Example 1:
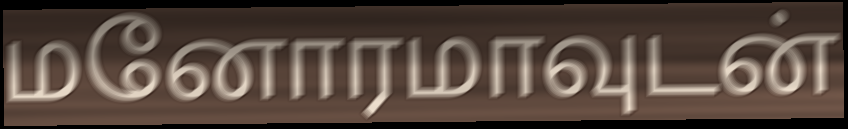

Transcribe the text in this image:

மனோரமாவுடன்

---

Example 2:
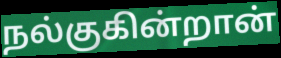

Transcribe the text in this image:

நல்குகின்றான்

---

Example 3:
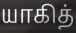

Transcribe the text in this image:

யாகித்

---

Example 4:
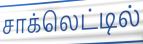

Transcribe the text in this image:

சாக்லெட்டில்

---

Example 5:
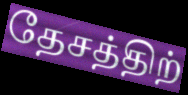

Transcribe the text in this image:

தேசத்திற்